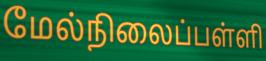
மேல்நிலைப்பள்ளி